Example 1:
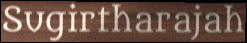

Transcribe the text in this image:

Sugirtharajah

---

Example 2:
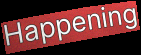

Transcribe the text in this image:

Happening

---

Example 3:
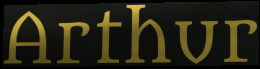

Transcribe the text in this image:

Arthur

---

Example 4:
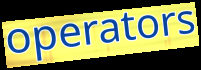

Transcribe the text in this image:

operators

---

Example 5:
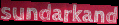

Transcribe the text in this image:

sundarkand